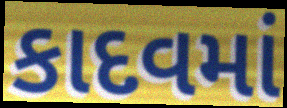
કાદવમાં